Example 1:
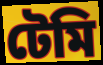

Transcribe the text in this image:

টেমি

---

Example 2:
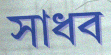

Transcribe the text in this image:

সাধব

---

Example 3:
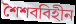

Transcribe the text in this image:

শৈশববিহীন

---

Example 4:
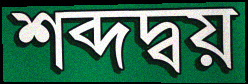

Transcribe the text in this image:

শব্দদ্বয়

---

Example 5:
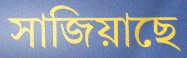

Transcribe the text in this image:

সাজিয়াছে